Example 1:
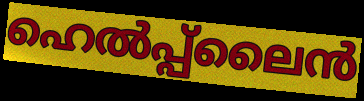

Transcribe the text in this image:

ഹെൽപ്പ്ലൈൻ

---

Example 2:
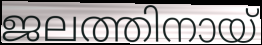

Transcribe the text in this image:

ജലത്തിനായ്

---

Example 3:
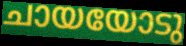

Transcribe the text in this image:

ചായയോടു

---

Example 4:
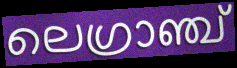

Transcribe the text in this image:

ലെഗ്രാഞ്ച്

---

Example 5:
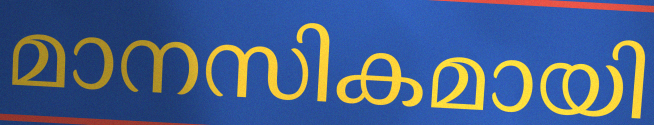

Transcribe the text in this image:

മാനസികമായി